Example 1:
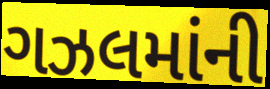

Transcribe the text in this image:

ગઝલમાંની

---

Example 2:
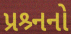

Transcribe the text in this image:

પ્રશ્ર્નનો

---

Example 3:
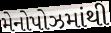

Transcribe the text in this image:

મેનોપોઝમાંથી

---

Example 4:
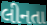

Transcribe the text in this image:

લીનતા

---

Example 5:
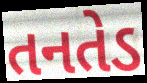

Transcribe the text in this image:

તનતેડ